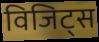
विजिट्स